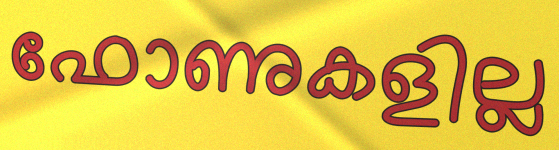
ഫോണുകളില്ല